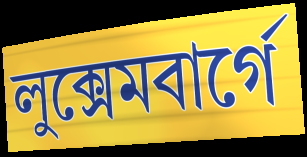
লুক্সেমবার্গে